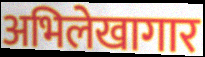
अभिलेखागार